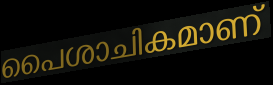
പൈശാചികമാണ്